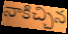
నాకిచ్చిన